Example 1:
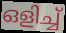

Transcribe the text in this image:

ഒളിച്ച്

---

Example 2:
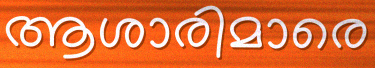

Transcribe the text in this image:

ആശാരിമാരെ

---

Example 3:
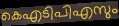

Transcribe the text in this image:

കെഎടിപിഎസും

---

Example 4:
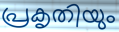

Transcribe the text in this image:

പ്രകൃതിയും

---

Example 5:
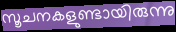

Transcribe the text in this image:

സൂചനകളുണ്ടായിരുന്നു